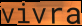
vivra